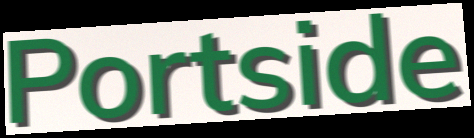
Portside